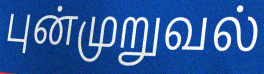
புன்முறுவல்